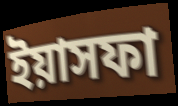
ইয়াসফা